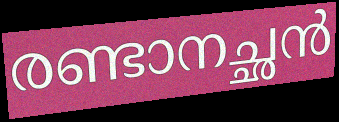
രണ്ടാനച്ഛൻ